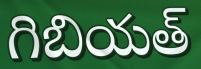
గిబియత్